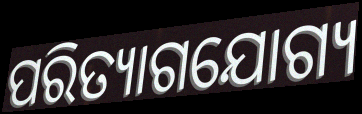
ପରିତ୍ୟାଗଯୋଗ୍ୟ